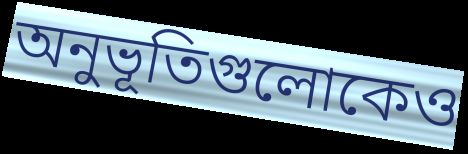
অনুভূতিগুলোকেও